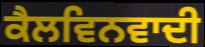
ਕੈਲਵਿਨਵਾਦੀ